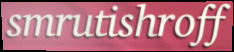
smrutishroff